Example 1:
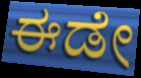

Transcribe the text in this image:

ಈಡೇ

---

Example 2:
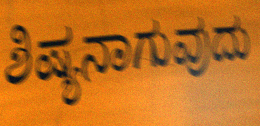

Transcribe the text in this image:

ಶಿಷ್ಯನಾಗುವುದು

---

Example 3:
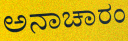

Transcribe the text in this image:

ಅನಾಚಾರಂ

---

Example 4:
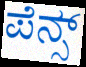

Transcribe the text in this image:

ಪೆನ್ಸ್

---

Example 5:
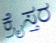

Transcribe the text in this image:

ಕ್ರೈಸ್ತರ